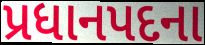
પ્રધાનપદના